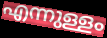
എന്നുള്ളം